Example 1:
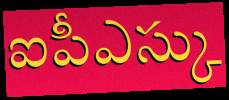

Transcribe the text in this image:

ఐపీఎస్కు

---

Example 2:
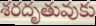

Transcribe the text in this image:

శరదృతువుకు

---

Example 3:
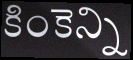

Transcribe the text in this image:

కింకెన్ని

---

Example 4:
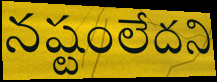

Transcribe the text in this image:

నష్టంలేదని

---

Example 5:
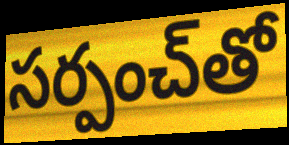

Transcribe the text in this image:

సర్పంచ్‌తో